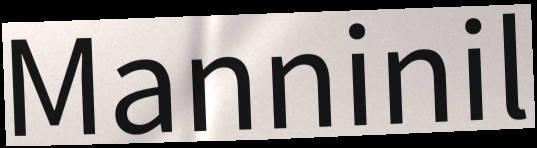
Manninil